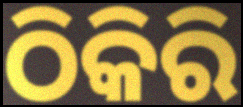
ଠିକିରି